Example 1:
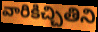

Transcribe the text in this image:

వారికిచ్చితిని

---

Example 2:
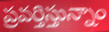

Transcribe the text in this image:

ప్రవర్తిస్తున్నాం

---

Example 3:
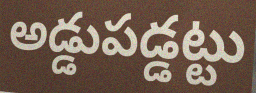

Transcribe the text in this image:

అడ్డుపడ్డట్టు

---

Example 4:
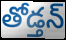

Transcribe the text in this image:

తోడ్తన్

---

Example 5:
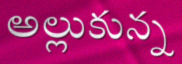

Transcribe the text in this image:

అల్లుకున్న